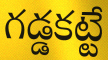
గడ్డకట్టే